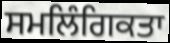
ਸਮਲਿੰਗਿਕਤਾ